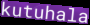
kutuhala